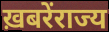
ख़बरेंराज्य